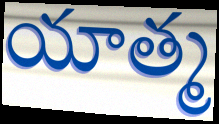
యాత్మ